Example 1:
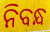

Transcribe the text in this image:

ନିବନ୍ଧ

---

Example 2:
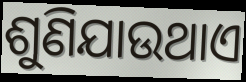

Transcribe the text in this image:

ଶୁଣିଯାଉଥାଏ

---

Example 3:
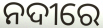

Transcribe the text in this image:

ନଦୀରେ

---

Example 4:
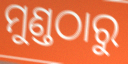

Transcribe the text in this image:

ମୁଣ୍ଡଠାରୁ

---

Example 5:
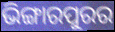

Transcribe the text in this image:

ଭିଙ୍ଗାରପୁରର